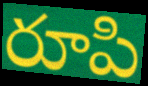
రూపి